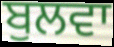
ਬੁਲਵਾ